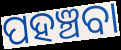
ପହଞ୍ଚବା